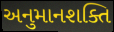
અનુમાનશક્તિ